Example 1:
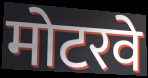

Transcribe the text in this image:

मोटरवे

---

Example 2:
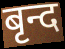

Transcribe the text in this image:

बृन्द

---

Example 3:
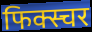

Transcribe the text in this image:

फिक्स्चर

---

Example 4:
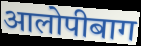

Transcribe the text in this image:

आलोपीबाग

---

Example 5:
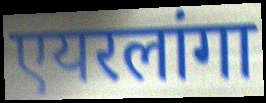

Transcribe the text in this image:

एयरलांगा